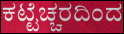
ಕಟ್ಟೆಚ್ಚರದಿಂದ